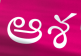
ఆశ